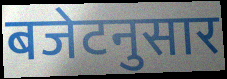
बजेटनुसार